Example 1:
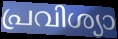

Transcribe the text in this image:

പ്രവിശ്യാ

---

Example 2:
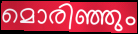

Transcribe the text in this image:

മൊരിഞ്ഞും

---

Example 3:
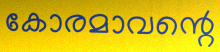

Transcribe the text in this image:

കോരമാവന്റെ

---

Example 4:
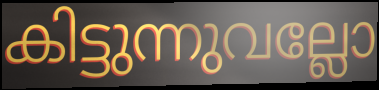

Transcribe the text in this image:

കിട്ടുന്നുവല്ലോ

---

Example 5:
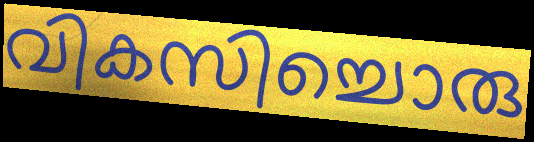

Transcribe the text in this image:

വികസിച്ചൊരു